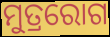
ମୁତ୍ରରୋଗ